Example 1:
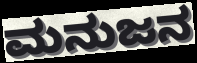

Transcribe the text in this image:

ಮನುಜನ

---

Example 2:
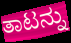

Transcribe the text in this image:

ತಾಟನ್ನು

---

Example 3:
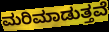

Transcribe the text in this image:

ಮರಿಮಾಡುತ್ತವೆ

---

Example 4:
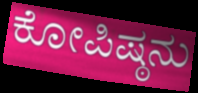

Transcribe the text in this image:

ಕೋಪಿಷ್ಠನು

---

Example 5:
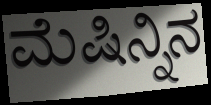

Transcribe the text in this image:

ಮೆಷಿನ್ನಿನ